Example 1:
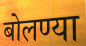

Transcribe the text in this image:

बोलण्या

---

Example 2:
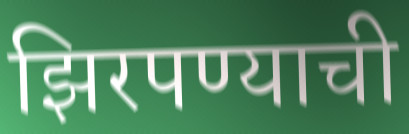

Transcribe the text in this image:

झिरपण्याची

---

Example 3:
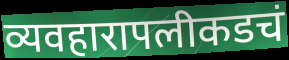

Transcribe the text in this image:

व्यवहारापलीकडचं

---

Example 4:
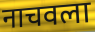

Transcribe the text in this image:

नाचवला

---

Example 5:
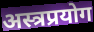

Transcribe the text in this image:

अस्त्रप्रयोग